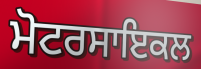
ਮੋਟਰਸਾਇਕਲ